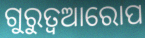
ଗୁରୁତ୍ଵଆରୋପ